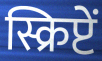
स्क्रिप्टें